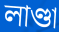
লাণ্ডা